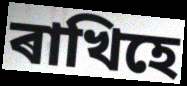
ৰাখিহে